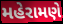
મહેરામણે